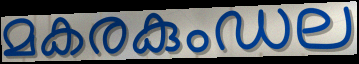
മകരകുംഡല